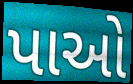
પાઓ